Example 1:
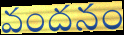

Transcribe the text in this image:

వందనం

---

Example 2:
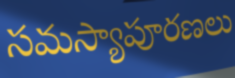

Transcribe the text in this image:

సమస్యాపూరణలు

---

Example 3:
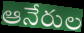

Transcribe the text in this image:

ఆనేరుల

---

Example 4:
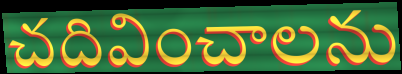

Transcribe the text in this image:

చదివించాలను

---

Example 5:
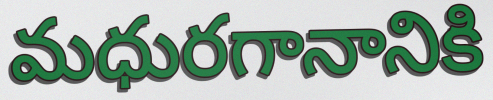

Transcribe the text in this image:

మధురగానానికి